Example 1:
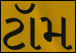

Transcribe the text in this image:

ટૉમ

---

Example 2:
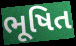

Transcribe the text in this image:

ભૂષિત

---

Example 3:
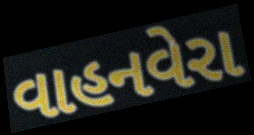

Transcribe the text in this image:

વાહનવેરા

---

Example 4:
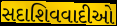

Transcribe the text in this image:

સદાશિવવાદીઓ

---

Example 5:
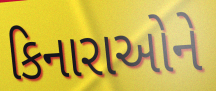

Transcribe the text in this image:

કિનારાઓને